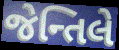
જેન્તિલે